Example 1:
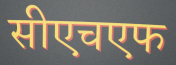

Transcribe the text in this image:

सीएचएफ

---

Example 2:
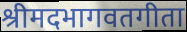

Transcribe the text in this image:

श्रीमदभागवतगीता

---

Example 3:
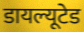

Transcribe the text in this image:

डायल्यूटेड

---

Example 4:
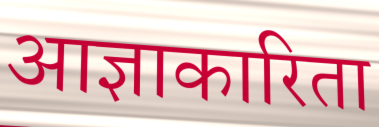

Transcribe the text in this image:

आज्ञाकारिता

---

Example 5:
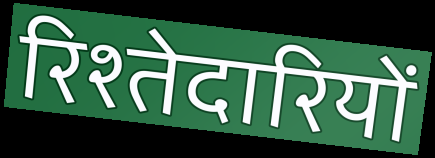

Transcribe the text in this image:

रिश्तेदारियों